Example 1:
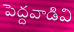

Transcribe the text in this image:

పెద్దవాడివి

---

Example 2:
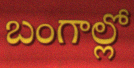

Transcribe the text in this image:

బంగాల్లో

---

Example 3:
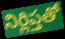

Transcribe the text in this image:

నిర్లిప్తతో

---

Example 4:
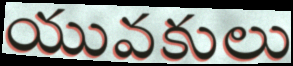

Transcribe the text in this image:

యువకులు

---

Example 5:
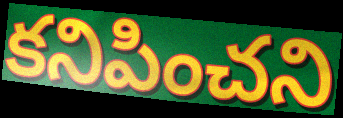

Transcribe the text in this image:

కనిపించని